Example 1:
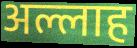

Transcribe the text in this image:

अल्लाह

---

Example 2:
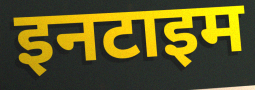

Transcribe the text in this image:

इनटाइम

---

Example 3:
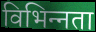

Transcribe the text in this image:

विभिन्‍नता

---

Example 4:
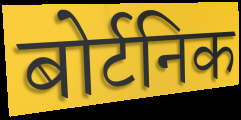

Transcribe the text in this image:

बोर्टनिक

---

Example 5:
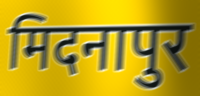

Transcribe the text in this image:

मिदनापुर